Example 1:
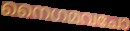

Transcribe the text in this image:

നൈഗമവചോ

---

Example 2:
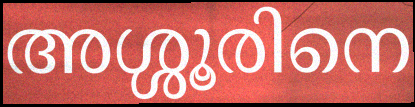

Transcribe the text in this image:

അശ്ശൂരിനെ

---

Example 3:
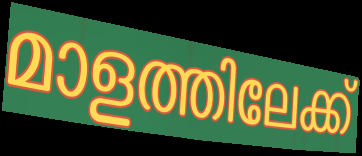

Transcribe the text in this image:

മാളത്തിലേക്ക്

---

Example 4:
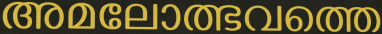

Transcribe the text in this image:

അമലോത്ഭവത്തെ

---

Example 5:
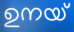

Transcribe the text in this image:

ഉനയ്